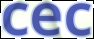
cec